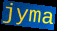
jyma